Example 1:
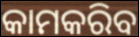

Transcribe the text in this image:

କାମକରିବ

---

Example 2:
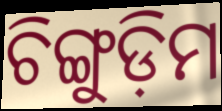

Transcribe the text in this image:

ଚିଙ୍ଗୁଡ଼ିମ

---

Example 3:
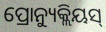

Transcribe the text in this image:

ପ୍ରୋନ୍ୟୁକ୍ଲିୟସ୍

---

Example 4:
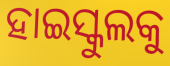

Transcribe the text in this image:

ହାଇସ୍କୁଲକୁ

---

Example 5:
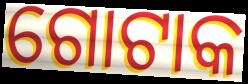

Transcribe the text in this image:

ଗୋଟାକ